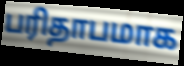
பரிதாபமாக